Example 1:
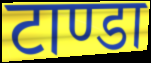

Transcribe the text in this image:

टाण्डा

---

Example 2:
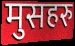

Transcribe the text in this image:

मुसहरु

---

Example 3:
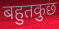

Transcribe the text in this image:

बहुतकुछ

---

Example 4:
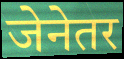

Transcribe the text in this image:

जेनेतर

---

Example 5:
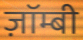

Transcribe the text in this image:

ज़ॉम्बी